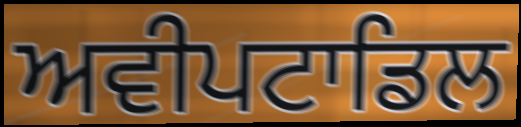
ਅਵੀਪਟਾਡਿਲ